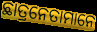
ଛାତ୍ରନେତାମାନେ